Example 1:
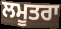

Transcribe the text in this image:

ਲਮੂਤਰਾ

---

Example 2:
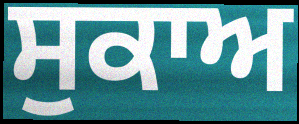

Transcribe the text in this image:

ਸੁਕਾਅ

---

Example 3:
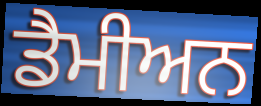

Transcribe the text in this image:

ਡੈਮੀਅਨ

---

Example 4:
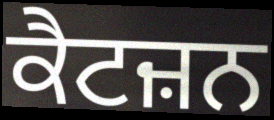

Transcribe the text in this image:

ਕੈਟਜ਼ਨ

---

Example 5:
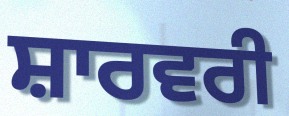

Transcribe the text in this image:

ਸ਼ਾਰਵਰੀ